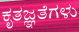
ಕೃತಜ್ಞತೆಗಳು